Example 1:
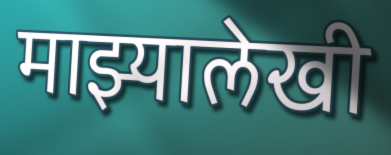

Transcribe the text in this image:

माझ्यालेखी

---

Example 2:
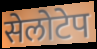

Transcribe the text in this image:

सेलोटेप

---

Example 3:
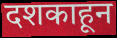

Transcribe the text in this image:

दशकाहून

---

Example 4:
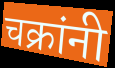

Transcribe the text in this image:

चक्रांनी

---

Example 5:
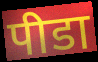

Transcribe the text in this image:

पीडा